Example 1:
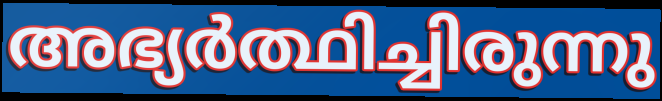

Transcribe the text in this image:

അഭ്യർത്ഥിച്ചിരുന്നു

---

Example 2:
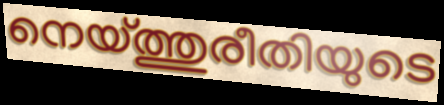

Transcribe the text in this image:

നെയ്ത്തുരീതിയുടെ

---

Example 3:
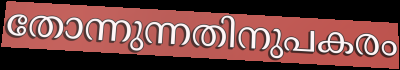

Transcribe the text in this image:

തോന്നുന്നതിനുപകരം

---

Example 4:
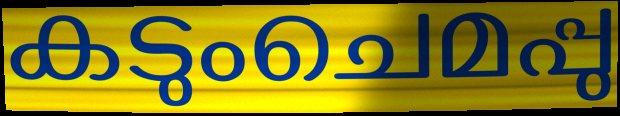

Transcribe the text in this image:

കടുംചെമപ്പു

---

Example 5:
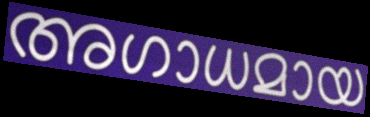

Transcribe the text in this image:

അഗാധമായ